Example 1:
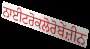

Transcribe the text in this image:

ਨਾਈਟਰੋਕਲੋਰੋਬੇਂਜ਼ੀਨ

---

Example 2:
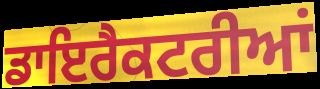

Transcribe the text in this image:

ਡਾਇਰੈਕਟਰੀਆਂ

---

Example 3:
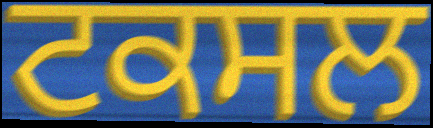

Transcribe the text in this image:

ਟਕਸਲ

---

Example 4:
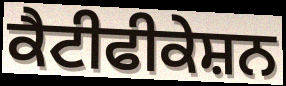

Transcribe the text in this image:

ਕੈਟੀਫੀਕੇਸ਼ਨ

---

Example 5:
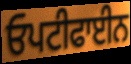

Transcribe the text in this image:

ਓਪਟੀਫਾਈਨ